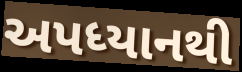
અપધ્યાનથી